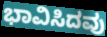
ಭಾವಿಸಿದವು